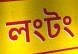
লংটং